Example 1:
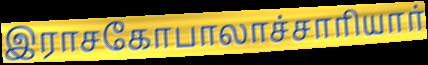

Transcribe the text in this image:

இராசகோபாலாச்சாரியார்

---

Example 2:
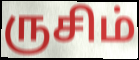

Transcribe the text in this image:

ருசிம்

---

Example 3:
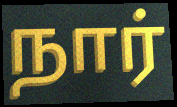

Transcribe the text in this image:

நார்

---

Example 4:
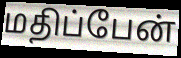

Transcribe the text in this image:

மதிப்பேன்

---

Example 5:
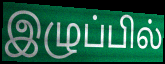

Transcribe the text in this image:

இழுப்பில்